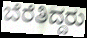
ಬೆರೆತಿದ್ದರು